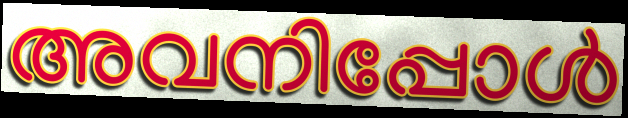
അവനിപ്പോൾ